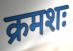
क्रमशः